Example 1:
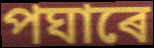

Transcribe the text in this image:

পঘাৰে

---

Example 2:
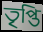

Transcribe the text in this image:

তৃপ্তি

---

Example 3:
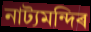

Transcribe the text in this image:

নাট্যমন্দিৰ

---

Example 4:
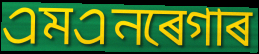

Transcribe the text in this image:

এমএনৰেগাৰ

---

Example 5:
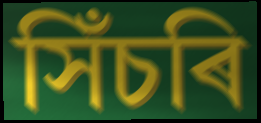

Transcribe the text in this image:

সিঁচৰি